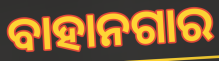
ବାହାନଗାର